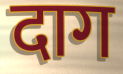
दाग